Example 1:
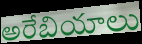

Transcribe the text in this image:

అరేబియాలు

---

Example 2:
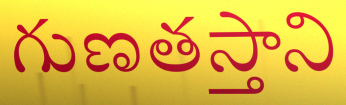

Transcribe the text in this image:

గుణతస్తాని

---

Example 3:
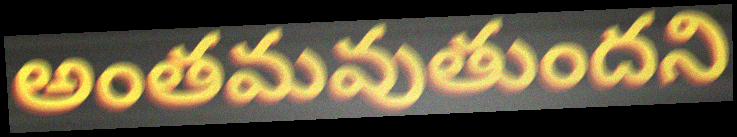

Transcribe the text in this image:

అంతమవుతుందని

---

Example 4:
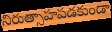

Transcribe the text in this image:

నిరుత్సాహపడకుండా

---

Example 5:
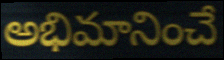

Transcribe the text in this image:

అభిమానించే